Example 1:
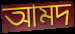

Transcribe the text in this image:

আমদ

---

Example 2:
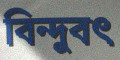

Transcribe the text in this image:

বিন্দুবৎ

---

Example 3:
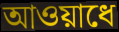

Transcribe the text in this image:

আওয়াধে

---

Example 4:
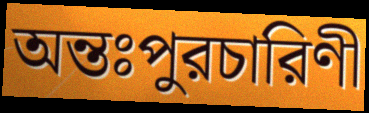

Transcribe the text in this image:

অন্তঃপুরচারিণী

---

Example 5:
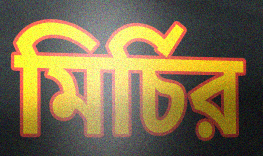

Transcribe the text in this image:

মির্চির